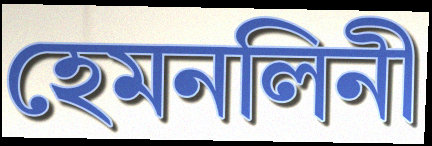
হেমনলিনী